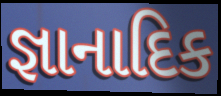
જ્ઞાનાદિક